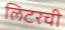
लिटरची